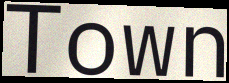
Town